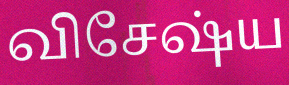
விசேஷ்ய